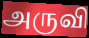
அருவி